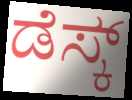
ಡೆಸ್ಕ್